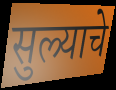
सुल्याचे